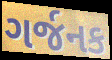
ગર્જનક